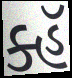
ક્હૅ